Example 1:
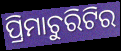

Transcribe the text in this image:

ପ୍ରିମାଚୁରିଟିର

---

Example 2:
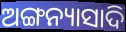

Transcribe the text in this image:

ଅଙ୍ଗନ୍ୟାସାଦି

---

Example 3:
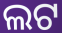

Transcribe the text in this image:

ଲଟ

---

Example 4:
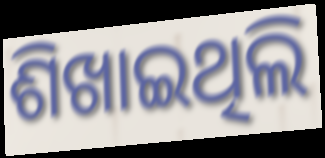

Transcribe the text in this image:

ଶିଖାଇଥିଲି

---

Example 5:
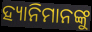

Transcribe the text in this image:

ହ୍ୟାନିମାନଙ୍କୁ